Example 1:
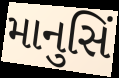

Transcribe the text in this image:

માનુસિં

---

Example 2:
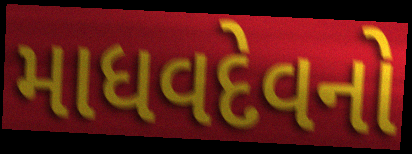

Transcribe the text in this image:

માધવદેવનો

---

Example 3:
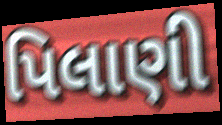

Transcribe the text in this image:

પિલાણી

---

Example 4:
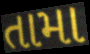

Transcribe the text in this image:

તામા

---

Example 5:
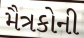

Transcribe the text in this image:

મૈત્રકોની